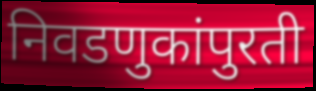
निवडणुकांपुरती